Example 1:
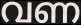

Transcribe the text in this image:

വണ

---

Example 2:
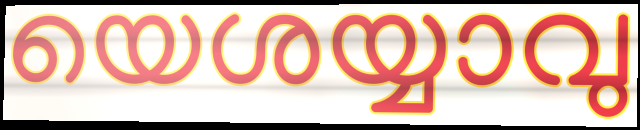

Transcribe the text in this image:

യെശയ്യാവു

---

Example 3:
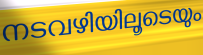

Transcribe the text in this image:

നടവഴിയിലൂടെയും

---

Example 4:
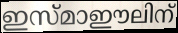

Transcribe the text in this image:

ഇസ്മാഈലിന്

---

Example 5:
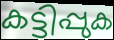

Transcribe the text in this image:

കട്ടിപ്പുക